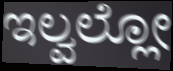
ಇಲ್ವಲ್ಲೋ